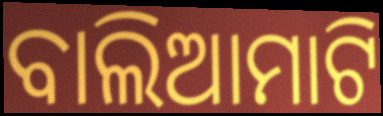
ବାଲିଆମାଟି